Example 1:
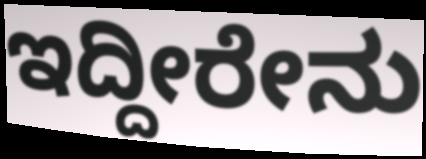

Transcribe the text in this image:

ಇದ್ದೀರೇನು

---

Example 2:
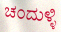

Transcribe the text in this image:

ಚಂದುಳ್ಳಿ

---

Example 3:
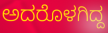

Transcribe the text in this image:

ಅದರೊಳಗಿದ್ದ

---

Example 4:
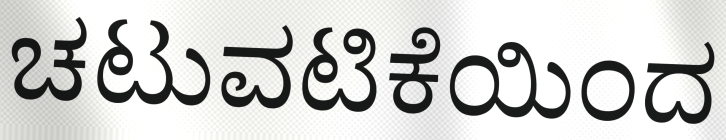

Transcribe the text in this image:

ಚಟುವಟಿಕೆಯಿಂದ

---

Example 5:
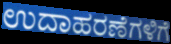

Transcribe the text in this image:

ಉದಾಹರಣೆಗಳಿಗೆ